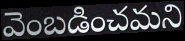
వెంబడించమని